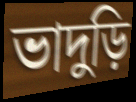
ভাদুড়ি